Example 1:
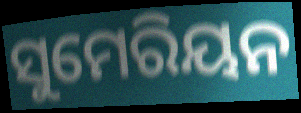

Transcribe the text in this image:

ସୁମେରିୟନ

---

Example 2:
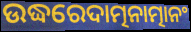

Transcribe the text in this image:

ଉଦ୍ଧରେଦାତ୍ମନାତ୍ମାନଂ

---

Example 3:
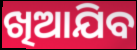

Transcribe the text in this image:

ଖିଆଯିବ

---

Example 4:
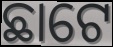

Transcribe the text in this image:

ଛାଟେ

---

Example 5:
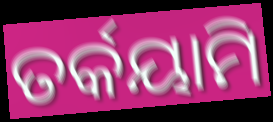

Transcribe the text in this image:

ତର୍କୟାମି